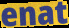
enat